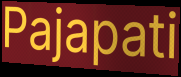
Pajapati